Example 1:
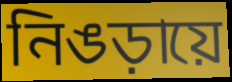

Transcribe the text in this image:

নিঙড়ায়ে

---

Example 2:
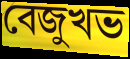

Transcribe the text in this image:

বেজুখভ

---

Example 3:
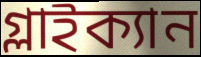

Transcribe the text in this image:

গ্লাইক্যান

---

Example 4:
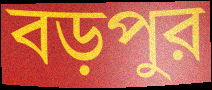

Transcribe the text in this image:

বড়পুর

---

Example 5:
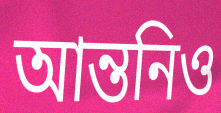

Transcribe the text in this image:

আন্তনিও